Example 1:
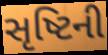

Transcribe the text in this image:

સૃષ્ટિની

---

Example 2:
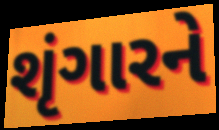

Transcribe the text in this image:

શૃંગારને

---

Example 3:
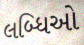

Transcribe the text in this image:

લબ્ધિઓ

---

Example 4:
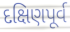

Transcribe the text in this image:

દક્ષિણપૂર્વ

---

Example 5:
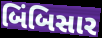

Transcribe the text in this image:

બિંબિસાર